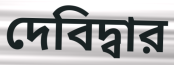
দেবিদ্বার